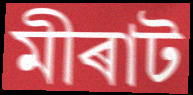
মীৰাট